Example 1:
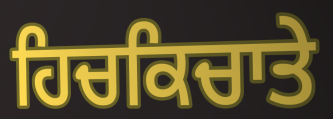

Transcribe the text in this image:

ਹਿਚਕਿਚਾਤੇ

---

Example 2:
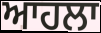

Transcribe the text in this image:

ਆਹਲਾ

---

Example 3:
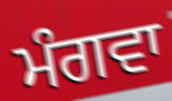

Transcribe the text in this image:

ਮੰਗਵਾ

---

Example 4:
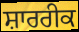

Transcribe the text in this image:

ਸ਼ਾਰਰੀਕ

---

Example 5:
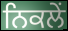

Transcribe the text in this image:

ਨਿਕਲੇਂ